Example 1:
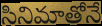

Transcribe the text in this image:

సినిమాతోనే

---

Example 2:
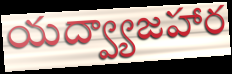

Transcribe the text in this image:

యద్వ్యాజహార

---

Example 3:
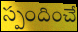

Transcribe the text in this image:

స్పందించే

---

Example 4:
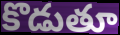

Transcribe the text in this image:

కొడుతూ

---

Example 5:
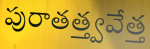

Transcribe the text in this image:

పురాతత్త్వవేత్త